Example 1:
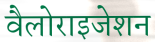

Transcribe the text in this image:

वैलोराइजेशन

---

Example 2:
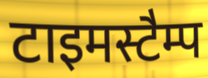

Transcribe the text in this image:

टाइमस्टैम्प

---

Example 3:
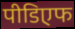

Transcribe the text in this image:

पीडिएफ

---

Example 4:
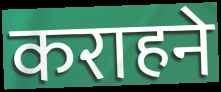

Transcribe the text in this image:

कराहने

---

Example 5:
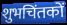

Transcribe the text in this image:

शुभचिंतकों